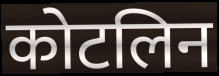
कोटलिन